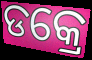
ଡକ୍ରେ